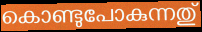
കൊണ്ടുപോകുന്നതു്